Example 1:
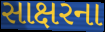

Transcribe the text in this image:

સાક્ષરના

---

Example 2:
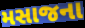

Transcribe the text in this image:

મસાજના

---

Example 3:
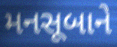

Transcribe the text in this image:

મનસૂબાને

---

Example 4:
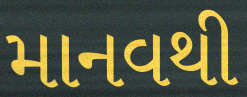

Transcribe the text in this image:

માનવથી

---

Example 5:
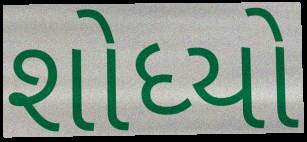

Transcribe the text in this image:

શોધ્યો